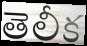
తెలీక